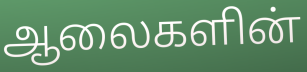
ஆலைகளின்